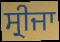
ਸ੍ਰੀਜਾ